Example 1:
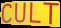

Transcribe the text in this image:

CULT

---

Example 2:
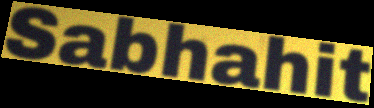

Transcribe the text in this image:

Sabhahit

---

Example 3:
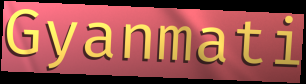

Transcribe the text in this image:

Gyanmati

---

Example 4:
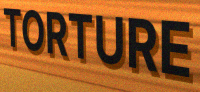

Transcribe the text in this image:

TORTURE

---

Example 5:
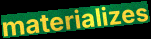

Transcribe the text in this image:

materializes